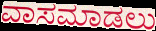
ವಾಸಮಾಡಲು